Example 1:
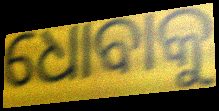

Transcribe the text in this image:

ଧୋବାକୁ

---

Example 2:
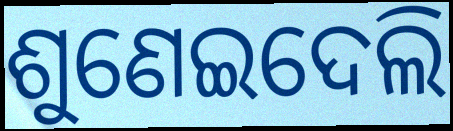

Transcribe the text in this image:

ଶୁଣେଇଦେଲି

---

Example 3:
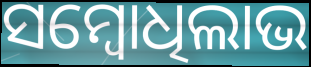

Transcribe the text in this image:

ସମ୍ବୋଧିଲାଭ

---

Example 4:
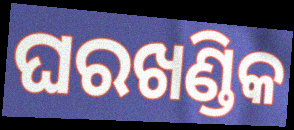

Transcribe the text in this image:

ଘରଖଣ୍ଡିକ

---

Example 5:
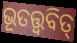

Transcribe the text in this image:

ଭୂତତ୍ତ୍ୱବିତ୍